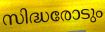
സിദ്ധരോടും